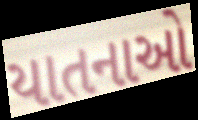
યાતનાઓ